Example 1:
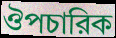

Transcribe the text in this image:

ঔপচারিক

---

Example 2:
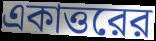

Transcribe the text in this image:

একাত্তরের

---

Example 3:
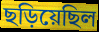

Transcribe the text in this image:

ছড়িয়েছিল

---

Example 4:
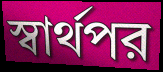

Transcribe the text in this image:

স্বার্থপর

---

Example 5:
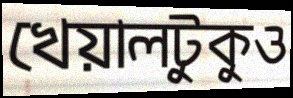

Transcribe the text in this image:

খেয়ালটুকুও